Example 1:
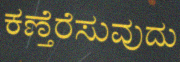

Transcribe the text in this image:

ಕಣ್ತೆರೆಸುವುದು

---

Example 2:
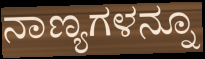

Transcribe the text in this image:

ನಾಣ್ಯಗಳನ್ನೂ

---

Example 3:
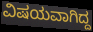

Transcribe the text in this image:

ವಿಷಯವಾಗಿದ್ದ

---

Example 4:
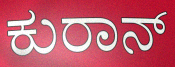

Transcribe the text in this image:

ಕುರಾನ್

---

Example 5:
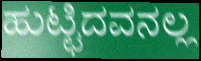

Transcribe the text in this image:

ಹುಟ್ಟಿದವನಲ್ಲ